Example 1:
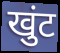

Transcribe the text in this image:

खुंट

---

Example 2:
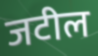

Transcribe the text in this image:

जटील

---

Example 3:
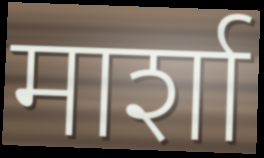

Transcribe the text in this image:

मार्शा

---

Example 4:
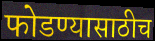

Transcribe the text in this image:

फोडण्यासाठीच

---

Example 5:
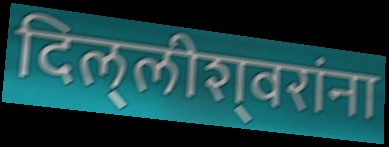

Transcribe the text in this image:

दिल्लीश्वरांना